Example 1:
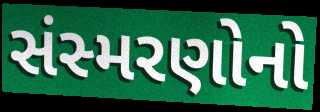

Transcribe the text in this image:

સંસ્મરણોનો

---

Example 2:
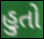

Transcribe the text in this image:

હુતો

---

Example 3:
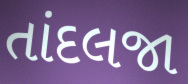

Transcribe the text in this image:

તાંદલજા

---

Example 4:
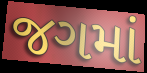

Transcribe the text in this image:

જગમાં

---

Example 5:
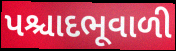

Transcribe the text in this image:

પશ્ચાદભૂવાળી